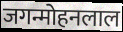
जगन्मोहनलाल